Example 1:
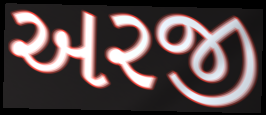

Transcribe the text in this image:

અરજી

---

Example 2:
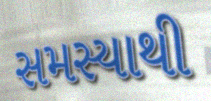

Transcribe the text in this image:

સમસ્યાથી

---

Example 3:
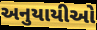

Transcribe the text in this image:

અનુયાયીઓ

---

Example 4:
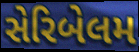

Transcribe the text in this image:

સેરિબેલમ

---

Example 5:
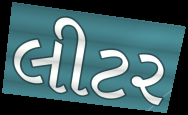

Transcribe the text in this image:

લીટર